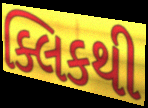
ક્લિકથી